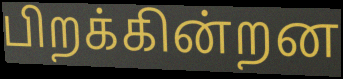
பிறக்கின்றன